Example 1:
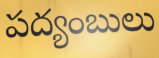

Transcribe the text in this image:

పద్యంబులు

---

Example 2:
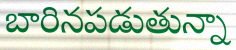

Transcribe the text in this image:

బారినపడుతున్నా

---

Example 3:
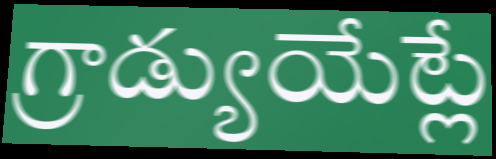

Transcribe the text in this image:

గ్రాడ్యుయేట్లే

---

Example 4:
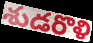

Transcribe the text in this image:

శుడరొళి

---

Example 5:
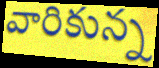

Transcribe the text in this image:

వారికున్న